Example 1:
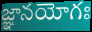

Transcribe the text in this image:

జ్ఞానయోగః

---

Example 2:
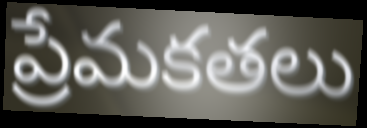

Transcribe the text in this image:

ప్రేమకతలు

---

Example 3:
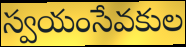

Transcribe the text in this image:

స్వయంసేవకుల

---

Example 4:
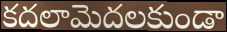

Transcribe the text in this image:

కదలామెదలకుండా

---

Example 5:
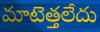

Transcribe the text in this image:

మాటెత్తలేదు